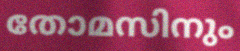
തോമസിനും